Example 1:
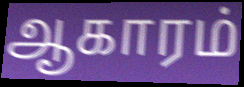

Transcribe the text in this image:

ஆகாரம்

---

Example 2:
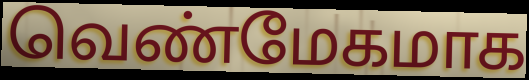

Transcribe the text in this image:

வெண்மேகமாக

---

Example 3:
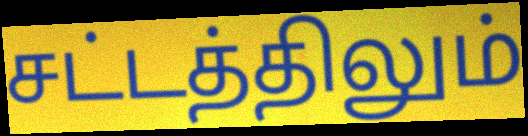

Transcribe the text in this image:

சட்டத்திலும்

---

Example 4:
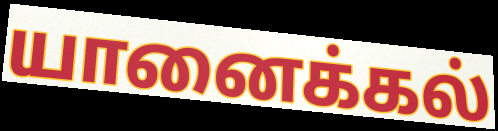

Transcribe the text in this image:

யானைக்கல்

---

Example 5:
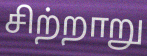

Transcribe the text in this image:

சிற்றாறு